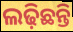
ଲଢ଼ିଛନ୍ତି